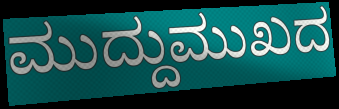
ಮುದ್ದುಮುಖದ